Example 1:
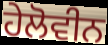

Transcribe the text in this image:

ਹੇਲੋਵੀਨ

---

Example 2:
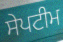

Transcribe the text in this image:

ਸੇਪਟੀਮ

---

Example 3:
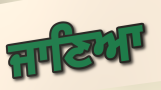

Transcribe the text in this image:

ਜਾਣਿਆ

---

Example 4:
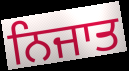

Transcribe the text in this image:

ਨਿਜਾਤ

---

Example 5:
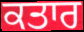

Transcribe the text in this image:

ਕਤਾਰ